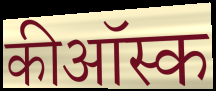
कीऑस्क